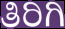
ತಿರಿಗಿ